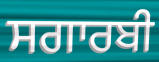
ਸਗਾਰਬੀ